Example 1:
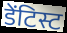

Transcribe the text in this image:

डेंटिस्ट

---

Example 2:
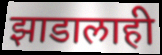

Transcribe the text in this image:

झाडालाही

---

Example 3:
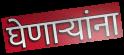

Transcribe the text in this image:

घेणाऱ्यांना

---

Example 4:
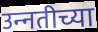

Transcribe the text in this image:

उन्नतीच्या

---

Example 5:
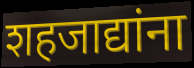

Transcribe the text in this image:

शहजाद्यांना